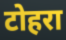
टोहरा